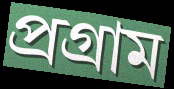
প্ৰগ্ৰাম